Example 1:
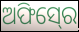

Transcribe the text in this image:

ଅଫିସ୍‍ରେ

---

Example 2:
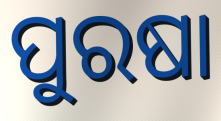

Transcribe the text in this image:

ପୁରଷା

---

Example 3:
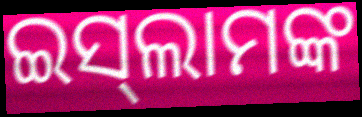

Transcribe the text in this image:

ଇସ୍‌ଲାମଙ୍କ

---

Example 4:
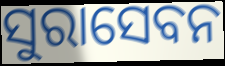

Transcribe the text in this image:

ସୁରାସେବନ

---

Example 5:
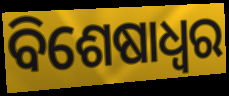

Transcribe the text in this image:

ବିଶେଷାଧ୍ଵର